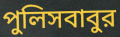
পুলিসবাবুর